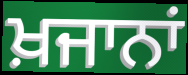
ਖ਼ਜਾਨਾਂ